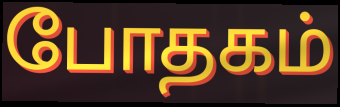
போதகம்